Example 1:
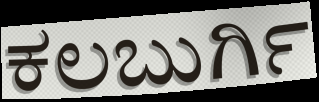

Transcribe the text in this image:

ಕಲಬುರ್ಗಿ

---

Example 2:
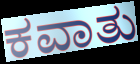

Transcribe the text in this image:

ಕವಾತು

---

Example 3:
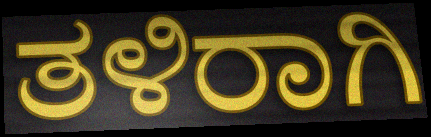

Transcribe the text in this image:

ತಳಿರಾಗಿ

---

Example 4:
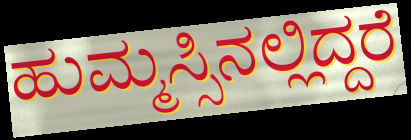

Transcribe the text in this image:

ಹುಮ್ಮಸ್ಸಿನಲ್ಲಿದ್ದರೆ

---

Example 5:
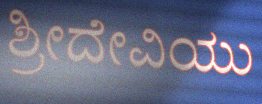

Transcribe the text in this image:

ಶ್ರೀದೇವಿಯು